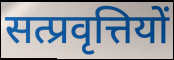
सत्प्रवृत्तियों